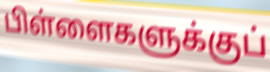
பிள்ளைகளுக்குப்